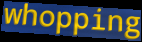
whopping